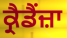
ਕ੍ਰੈਡੈਂਜ਼ਾ